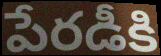
పేరడీకి